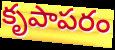
కృపాపరం